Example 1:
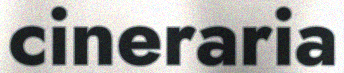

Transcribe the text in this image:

cineraria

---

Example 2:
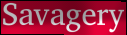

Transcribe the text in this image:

Savagery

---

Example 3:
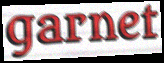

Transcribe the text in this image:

garnet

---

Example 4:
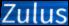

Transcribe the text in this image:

Zulus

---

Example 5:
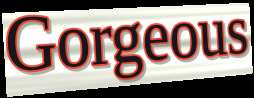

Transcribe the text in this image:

Gorgeous